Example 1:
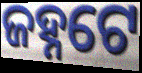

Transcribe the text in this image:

ଜହ୍ନଟେ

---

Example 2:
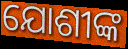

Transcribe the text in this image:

ଯୋଶୀଙ୍କ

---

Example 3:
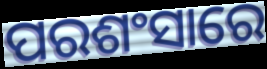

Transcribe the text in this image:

ପରଶଂସାରେ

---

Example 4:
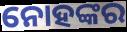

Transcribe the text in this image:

ନୋହଙ୍କର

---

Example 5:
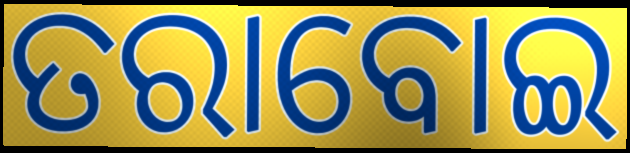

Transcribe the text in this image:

ତରାବୋଇ